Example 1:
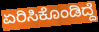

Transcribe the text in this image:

ಏರಿಸಿಕೊಂಡಿದ್ದೆ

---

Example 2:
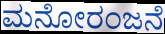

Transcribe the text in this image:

ಮನೋರಂಜನೆ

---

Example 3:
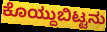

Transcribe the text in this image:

ಕೊಯ್ದುಬಿಟ್ಟನು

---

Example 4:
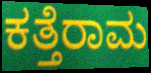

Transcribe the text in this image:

ಕತ್ತೆರಾಮ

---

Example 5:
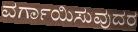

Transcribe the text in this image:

ವರ್ಗಾಯಿಸುವುದರ